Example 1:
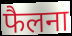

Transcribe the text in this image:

फैलना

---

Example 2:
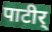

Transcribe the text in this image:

पाटीर्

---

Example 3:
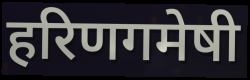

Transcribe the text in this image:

हरिणगमेषी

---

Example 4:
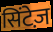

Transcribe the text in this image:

सिंटेज़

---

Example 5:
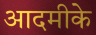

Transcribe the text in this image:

आदमीके